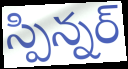
స్పిన్నర్